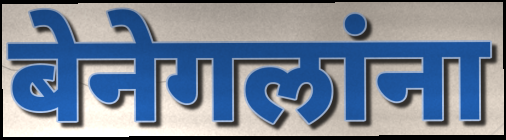
बेनेगलांना